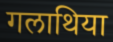
गलाथिया